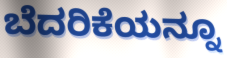
ಬೆದರಿಕೆಯನ್ನೂ